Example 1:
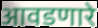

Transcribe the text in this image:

आवडणारे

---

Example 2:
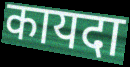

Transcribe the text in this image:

कायदा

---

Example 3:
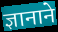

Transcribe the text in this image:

ज्ञानाने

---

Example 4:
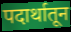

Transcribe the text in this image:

पदार्थातून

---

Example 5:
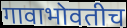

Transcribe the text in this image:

गावाभोवतीच